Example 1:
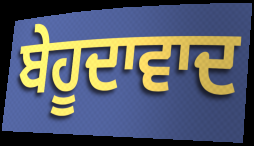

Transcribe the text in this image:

ਬੇਹੂਦਾਵਾਦ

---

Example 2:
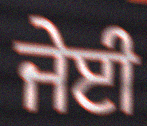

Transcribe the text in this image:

ਜੇਈ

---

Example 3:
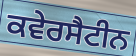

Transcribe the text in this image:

ਕਵੇਰਸੈਟੀਨ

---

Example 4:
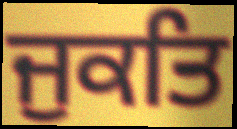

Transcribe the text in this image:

ਜੁਕਤਿ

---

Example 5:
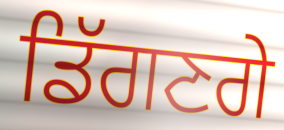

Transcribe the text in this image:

ਡਿੱਗਣਗੇ